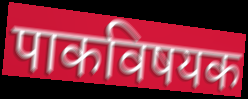
पाकविषयक